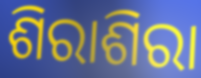
ଶିରାଶିରା